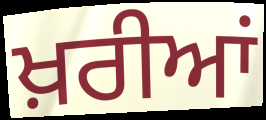
ਖ਼ਰੀਆਂ